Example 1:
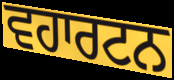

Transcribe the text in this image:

ਵਹਾਰਟਨ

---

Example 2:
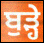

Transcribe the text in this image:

ਬੁੜ੍ਹੇ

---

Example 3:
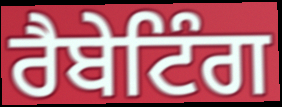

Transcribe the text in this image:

ਰੈਬੇਟਿੰਗ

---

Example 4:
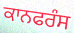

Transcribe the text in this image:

ਕਾਨਫਰੰਸ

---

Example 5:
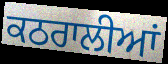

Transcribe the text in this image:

ਕਠਰਾਲੀਆਂ